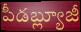
పీడబ్ల్యూజీ